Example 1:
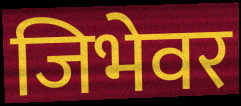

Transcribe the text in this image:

जिभेवर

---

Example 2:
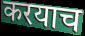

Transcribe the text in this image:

करयाच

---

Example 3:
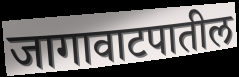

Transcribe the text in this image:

जागावाटपातील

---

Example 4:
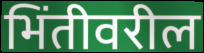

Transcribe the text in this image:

भिंतीवरील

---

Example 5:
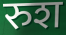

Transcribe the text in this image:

रुश